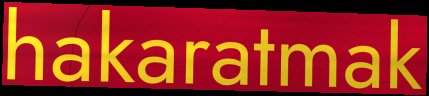
hakaratmak